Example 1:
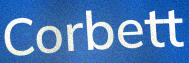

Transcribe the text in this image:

Corbett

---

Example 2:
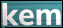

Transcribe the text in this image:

kem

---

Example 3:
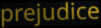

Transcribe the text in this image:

prejudice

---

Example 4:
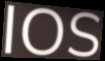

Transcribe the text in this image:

IOS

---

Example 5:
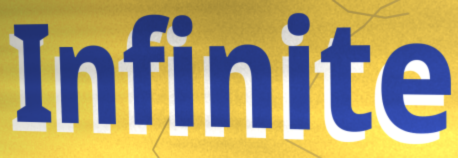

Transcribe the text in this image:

Infinite